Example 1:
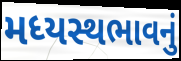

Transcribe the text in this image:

મધ્યસ્થભાવનું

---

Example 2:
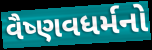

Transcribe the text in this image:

વૈષ્ણવધર્મનો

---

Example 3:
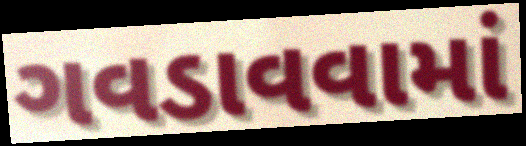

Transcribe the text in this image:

ગવડાવવામાં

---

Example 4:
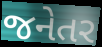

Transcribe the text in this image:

જનેતર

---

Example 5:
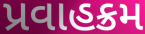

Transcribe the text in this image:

પ્રવાહક્રમ